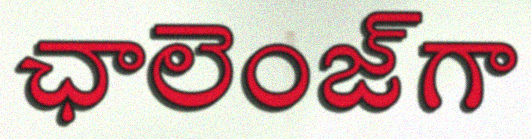
ఛాలెంజ్‌గా